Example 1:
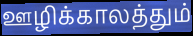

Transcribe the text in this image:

ஊழிக்காலத்தும்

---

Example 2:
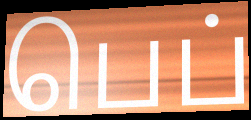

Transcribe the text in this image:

பெப்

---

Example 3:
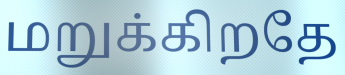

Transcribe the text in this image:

மறுக்கிறதே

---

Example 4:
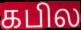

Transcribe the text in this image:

கபில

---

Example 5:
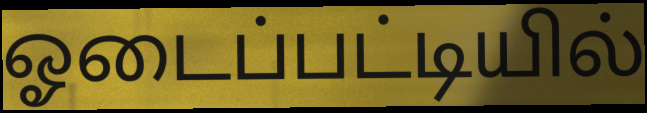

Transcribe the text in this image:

ஓடைப்பட்டியில்